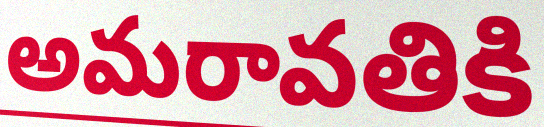
అమరావతికి